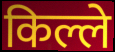
किल्ले